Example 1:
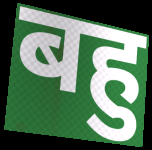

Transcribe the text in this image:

बहु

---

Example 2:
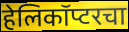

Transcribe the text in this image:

हेलिकॉप्टरचा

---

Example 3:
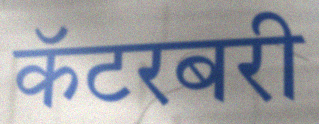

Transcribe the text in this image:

कॅटरबरी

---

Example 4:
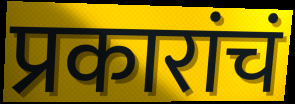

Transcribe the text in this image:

प्रकारांचं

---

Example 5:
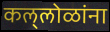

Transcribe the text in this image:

कल्लोळांना